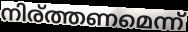
നിര്ത്തണമെന്ന്